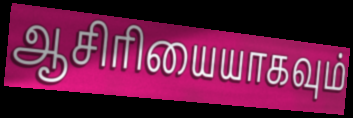
ஆசிரியையாகவும்